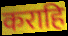
कराहि